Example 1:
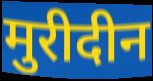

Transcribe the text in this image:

मुरीदीन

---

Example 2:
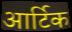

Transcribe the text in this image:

आर्टिक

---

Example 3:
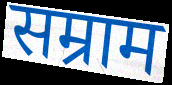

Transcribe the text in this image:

सम्राम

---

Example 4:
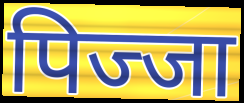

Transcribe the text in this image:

पिज्जा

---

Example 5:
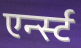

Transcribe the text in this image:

एर्न्स्ट